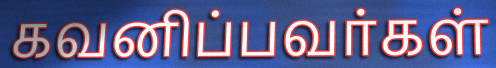
கவனிப்பவர்கள்